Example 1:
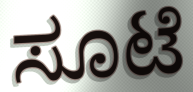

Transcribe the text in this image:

ಸೂಟೆ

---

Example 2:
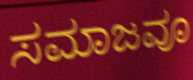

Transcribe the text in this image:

ಸಮಾಜವೂ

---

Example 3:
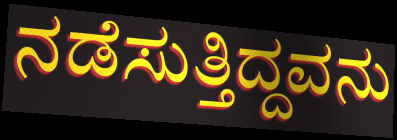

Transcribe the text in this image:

ನಡೆಸುತ್ತಿದ್ದವನು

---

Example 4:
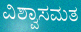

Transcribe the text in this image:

ವಿಶ್ವಾಸಮತ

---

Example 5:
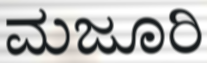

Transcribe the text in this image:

ಮಜೂರಿ